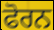
ਫੋਰਨ